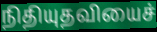
நிதியுதவியைச்